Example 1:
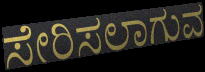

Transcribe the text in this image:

ಸೇರಿಸಲಾಗುವ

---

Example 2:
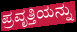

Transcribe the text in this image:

ಪ್ರವೃತ್ತಿಯನ್ನು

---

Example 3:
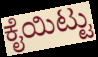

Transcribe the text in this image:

ಕೈಯಿಟ್ಟು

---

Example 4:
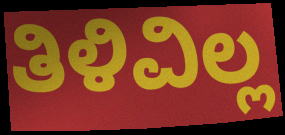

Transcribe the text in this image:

ತಿಳಿವಿಲ್ಲ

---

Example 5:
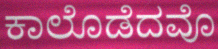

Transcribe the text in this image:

ಕಾಲೊಡೆದವೊ